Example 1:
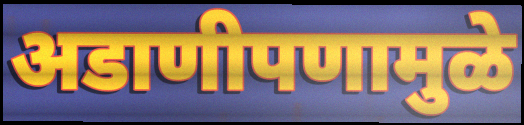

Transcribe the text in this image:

अडाणीपणामुळे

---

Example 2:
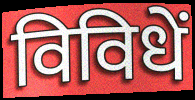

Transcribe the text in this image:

विविधें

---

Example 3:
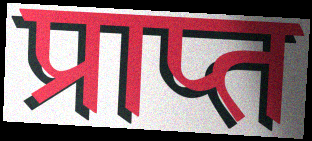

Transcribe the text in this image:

प्राप्‍त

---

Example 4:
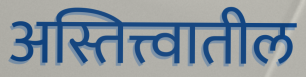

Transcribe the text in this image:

अस्तित्त्वातील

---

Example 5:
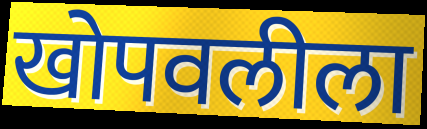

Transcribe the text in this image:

खोपवलीला